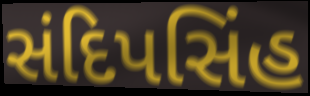
સંદિપસિંહ